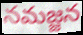
నమజ్జన